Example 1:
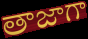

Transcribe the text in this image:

తాజాగా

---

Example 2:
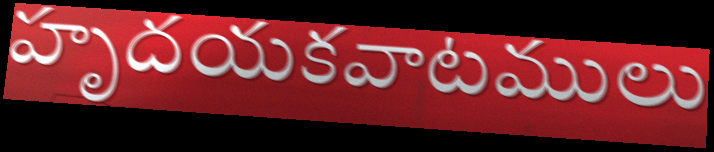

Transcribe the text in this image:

హృదయకవాటములు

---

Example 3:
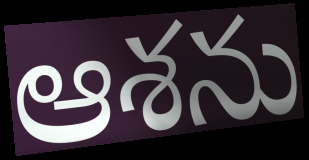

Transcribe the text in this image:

ఆశను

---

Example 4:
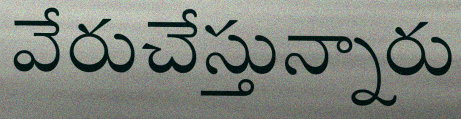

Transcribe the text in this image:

వేరుచేస్తున్నారు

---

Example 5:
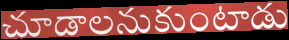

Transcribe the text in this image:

చూడాలనుకుంటాడు